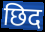
छिद